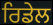
ਰਿਡੇਲ